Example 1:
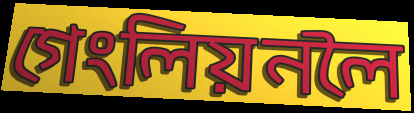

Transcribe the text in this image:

গেংলিয়নলৈ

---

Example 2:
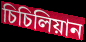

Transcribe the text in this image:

চিচিলিয়ান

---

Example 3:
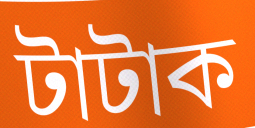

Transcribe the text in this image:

টাটাক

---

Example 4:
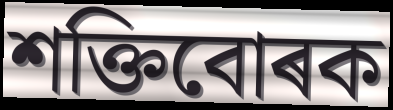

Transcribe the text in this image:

শক্তিবোৰক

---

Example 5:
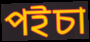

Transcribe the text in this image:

পইচা